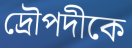
দ্রৌপদীকে